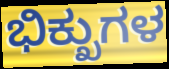
ಭಿಕ್ಖುಗಳ